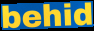
behid